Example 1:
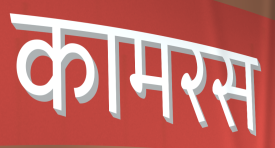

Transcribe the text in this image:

कामरस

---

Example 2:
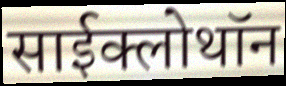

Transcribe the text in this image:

साईक्लोथॉन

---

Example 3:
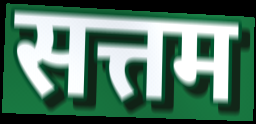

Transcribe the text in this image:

सत्तम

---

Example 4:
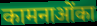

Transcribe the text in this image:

कामनाओंका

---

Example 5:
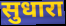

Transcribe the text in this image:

सुधारा